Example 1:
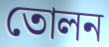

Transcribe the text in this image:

তোলন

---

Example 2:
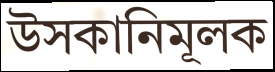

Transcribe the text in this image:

উসকানিমূলক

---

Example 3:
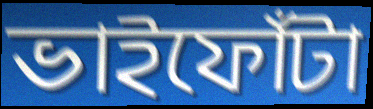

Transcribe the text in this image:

ভাইফোঁটা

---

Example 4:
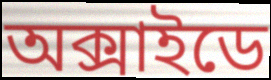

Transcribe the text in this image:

অক্সাইডে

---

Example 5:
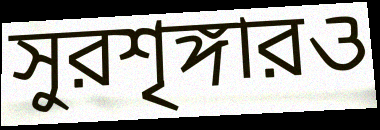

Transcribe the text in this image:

সুরশৃঙ্গারও